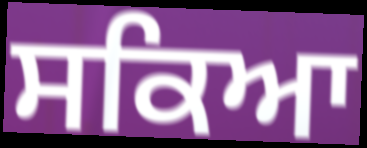
ਸਕਿਆ